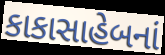
કાકાસાહેબનાં